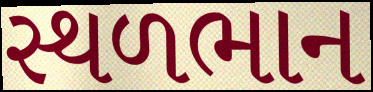
સ્થળભાન